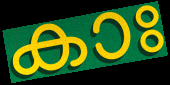
കാഃ